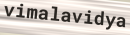
vimalavidya